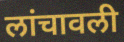
लांचावली